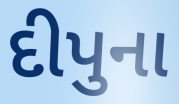
દીપુના